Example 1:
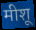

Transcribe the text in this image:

मीशू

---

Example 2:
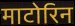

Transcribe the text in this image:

माटोरिन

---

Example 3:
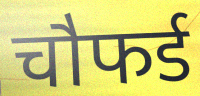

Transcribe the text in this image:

चौफर्ड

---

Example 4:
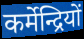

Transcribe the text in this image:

कर्मेन्द्रियों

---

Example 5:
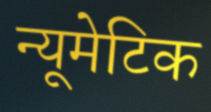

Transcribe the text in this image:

न्यूमेटिक